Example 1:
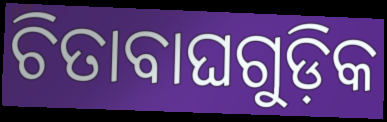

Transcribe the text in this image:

ଚିତାବାଘଗୁଡ଼ିକ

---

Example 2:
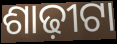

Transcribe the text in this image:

ଶାଢ଼ୀଟା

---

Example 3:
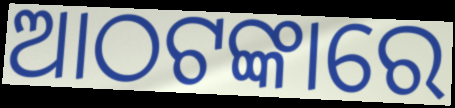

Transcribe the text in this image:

ଆଠଟଙ୍କାରେ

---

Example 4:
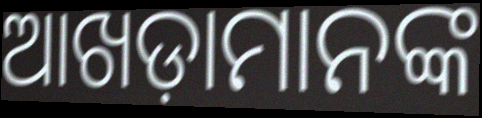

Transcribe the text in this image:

ଆଖଡ଼ାମାନଙ୍କ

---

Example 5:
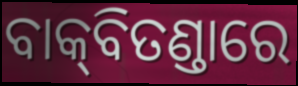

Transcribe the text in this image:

ବାକ୍‌ବିତଣ୍ଡାରେ